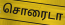
சொரைடா